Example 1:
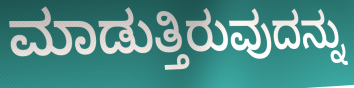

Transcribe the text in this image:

ಮಾಡುತ್ತಿರುವುದನ್ನು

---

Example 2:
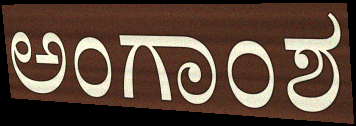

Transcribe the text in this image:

ಅಂಗಾಂಶ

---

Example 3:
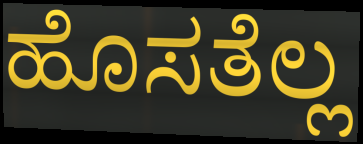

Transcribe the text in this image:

ಹೊಸತೆಲ್ಲ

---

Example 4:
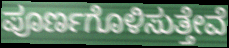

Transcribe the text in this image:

ಪೂರ್ಣಗೊಳಿಸುತ್ತೇವೆ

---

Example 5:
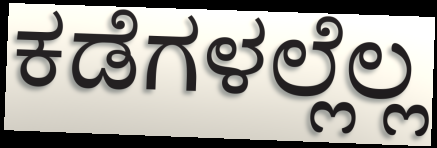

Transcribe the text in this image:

ಕಡೆಗಳಲ್ಲೆಲ್ಲ